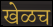
खेळच